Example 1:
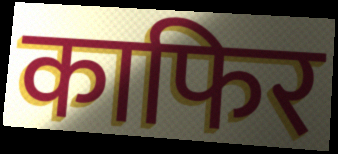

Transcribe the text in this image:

काफिर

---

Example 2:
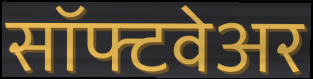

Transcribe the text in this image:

सॉफ्टवेअर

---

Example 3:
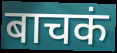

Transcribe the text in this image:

बाचकं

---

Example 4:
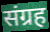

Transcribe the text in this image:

संग्रह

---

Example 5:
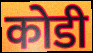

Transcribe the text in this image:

कोडी